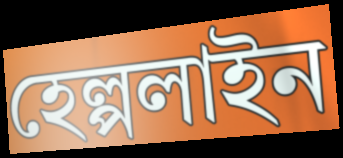
হেল্পলাইন